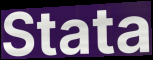
Stata